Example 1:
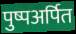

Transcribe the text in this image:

पुष्पअर्पित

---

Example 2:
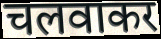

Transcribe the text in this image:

चलवाकर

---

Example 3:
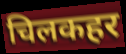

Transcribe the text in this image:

चिलकहर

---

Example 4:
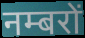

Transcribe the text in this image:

नम्बरों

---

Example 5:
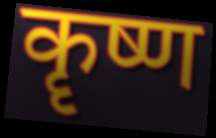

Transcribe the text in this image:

कॄष्ण